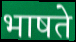
भाषते